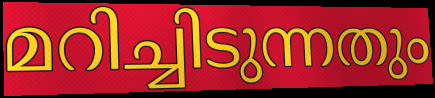
മറിച്ചിടുന്നതും